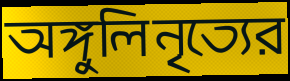
অঙ্গুলিনৃত্যের